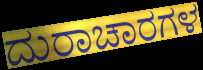
ದುರಾಚಾರಗಳ